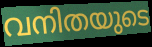
വനിതയുടെ